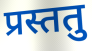
प्रस्ततु